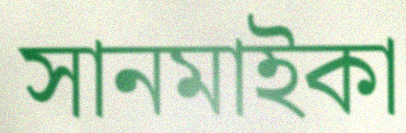
সানমাইকা